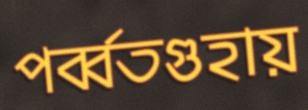
পর্ব্বতগুহায়